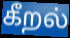
கீறல்